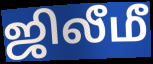
ஜிலீமீ